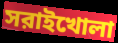
সরাইখোলা